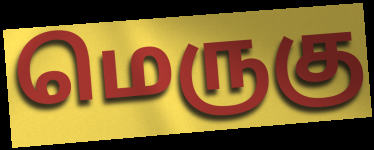
மெருகு